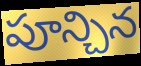
పూన్చిన